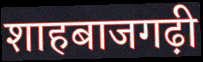
शाहबाजगढ़ी